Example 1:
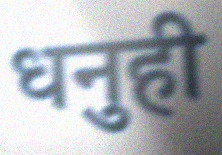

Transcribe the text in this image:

धनुही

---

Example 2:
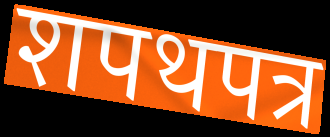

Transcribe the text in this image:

शपथपत्र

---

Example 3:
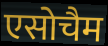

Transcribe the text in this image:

एसोचैम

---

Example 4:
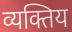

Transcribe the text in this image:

व्यक्तिय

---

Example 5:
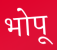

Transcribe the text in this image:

भोपू